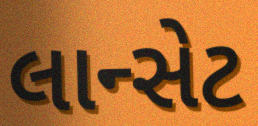
લાન્સેટ